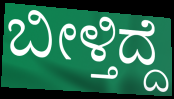
ಬೀಳ್ತಿದ್ದೆ